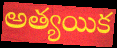
అత్యయిక